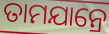
ତାମଯାନ୍ରେ